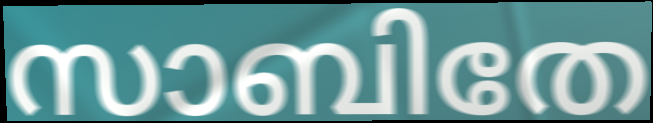
സാബിതേ